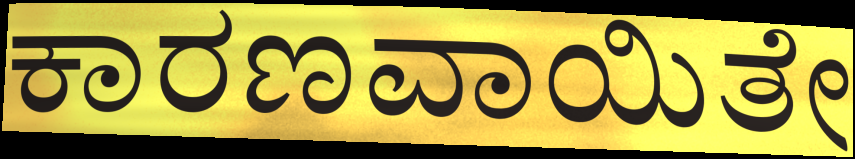
ಕಾರಣವಾಯಿತೇ